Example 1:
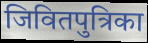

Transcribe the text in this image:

जिवितपुत्रिका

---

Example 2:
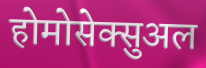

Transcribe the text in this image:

होमोसेक्सुअल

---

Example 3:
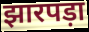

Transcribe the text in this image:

झारपड़ा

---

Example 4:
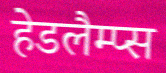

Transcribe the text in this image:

हेडलैम्प्स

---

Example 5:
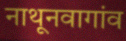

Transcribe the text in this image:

नाथूनवागांव